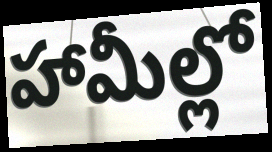
హామీల్లో